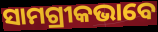
ସାମଗ୍ରୀକଭାବେ